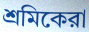
শ্রমিকেরা